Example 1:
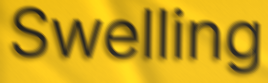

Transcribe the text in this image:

Swelling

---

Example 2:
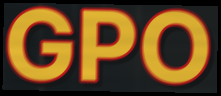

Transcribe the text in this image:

GPO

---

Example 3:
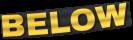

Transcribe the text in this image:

BELOW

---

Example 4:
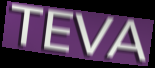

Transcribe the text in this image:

TEVA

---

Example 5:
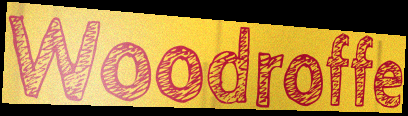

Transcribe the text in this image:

Woodroffe